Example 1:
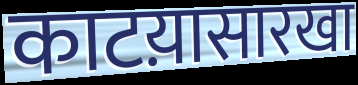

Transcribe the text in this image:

काटय़ासारखा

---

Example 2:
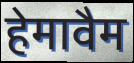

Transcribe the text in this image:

हेमावैम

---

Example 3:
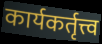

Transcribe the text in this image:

कार्यकर्तृत्त्व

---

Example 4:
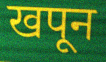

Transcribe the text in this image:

खपून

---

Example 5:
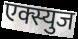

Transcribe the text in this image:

एक्स्युज